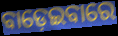
ବାଡ଼େଇବାରେ